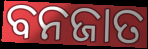
ବନଜାତ